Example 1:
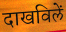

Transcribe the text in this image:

दाखविलें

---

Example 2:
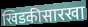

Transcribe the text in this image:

खिडकीसारखा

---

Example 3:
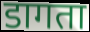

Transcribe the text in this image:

डागता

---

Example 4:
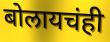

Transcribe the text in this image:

बोलायचंही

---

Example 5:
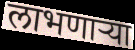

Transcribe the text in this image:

लाभणार्‍या